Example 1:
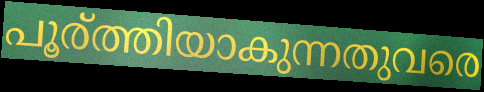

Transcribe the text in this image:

പൂര്ത്തിയാകുന്നതുവരെ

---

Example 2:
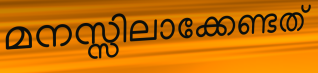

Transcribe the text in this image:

മനസ്സിലാക്കേണ്ടത്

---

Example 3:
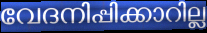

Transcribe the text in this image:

വേദനിപ്പിക്കാറില്ല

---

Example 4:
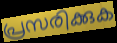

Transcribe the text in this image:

പ്രസരിക്കുക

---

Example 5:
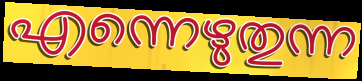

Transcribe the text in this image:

എന്നെഴുതുന്ന